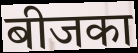
बीजका